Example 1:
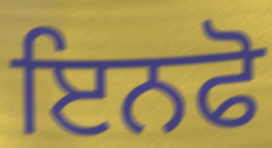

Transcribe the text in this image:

ਇਨਫੋ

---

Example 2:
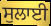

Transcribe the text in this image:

ਸੁਲਾਈ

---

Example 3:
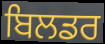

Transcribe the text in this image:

ਬਿਲਡਰ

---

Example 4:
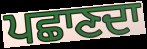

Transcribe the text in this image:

ਪਛਾਣਦਾ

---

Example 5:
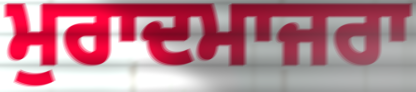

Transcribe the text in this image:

ਮੁਰਾਦਮਾਜਰਾ